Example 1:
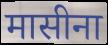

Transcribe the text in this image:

मासीना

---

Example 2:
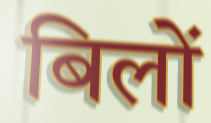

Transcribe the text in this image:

बिलों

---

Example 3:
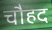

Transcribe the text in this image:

चौहद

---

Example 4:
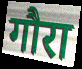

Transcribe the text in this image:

गौरा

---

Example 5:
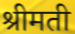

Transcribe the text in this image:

श्रीमती